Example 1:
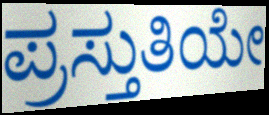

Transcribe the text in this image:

ಪ್ರಸ್ತುತಿಯೇ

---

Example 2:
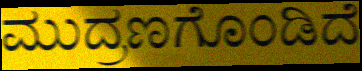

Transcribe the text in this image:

ಮುದ್ರಣಗೊಂಡಿದೆ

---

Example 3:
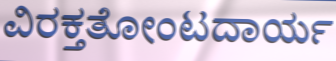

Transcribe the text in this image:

ವಿರಕ್ತತೋಂಟದಾರ್ಯ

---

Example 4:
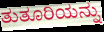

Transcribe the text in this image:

ತುತೂರಿಯನ್ನು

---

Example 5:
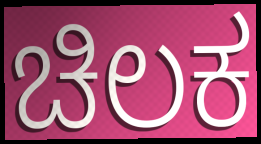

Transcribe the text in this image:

ಚಿಲಕ